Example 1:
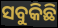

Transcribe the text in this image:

ସବୁକିଛି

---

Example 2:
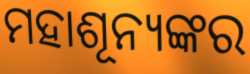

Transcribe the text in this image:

ମହାଶୂନ୍ୟଙ୍କର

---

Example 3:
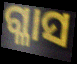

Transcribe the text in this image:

ଗ୍ଳାସ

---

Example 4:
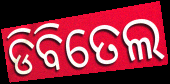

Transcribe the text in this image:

ଡିବିତେଲ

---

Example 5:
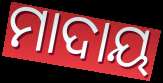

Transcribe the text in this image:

ମାଦାୟ